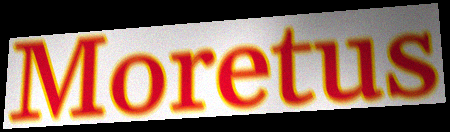
Moretus